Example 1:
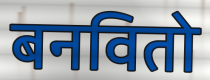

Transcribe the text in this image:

बनवितो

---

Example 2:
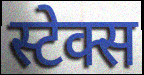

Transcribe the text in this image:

स्टेक्स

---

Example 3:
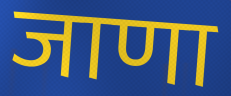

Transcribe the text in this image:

जाणा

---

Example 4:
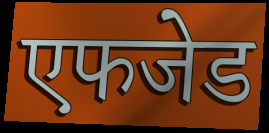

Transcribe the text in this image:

एफजेड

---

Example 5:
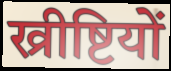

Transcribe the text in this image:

ख्रीष्टियों